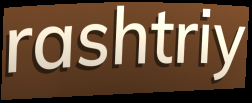
rashtriy